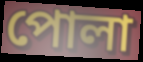
পোলা